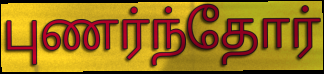
புணர்ந்தோர்